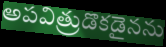
అపవిత్రుడొకడైనను